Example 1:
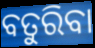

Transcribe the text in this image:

ବତୁରିବା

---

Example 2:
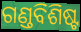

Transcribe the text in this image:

ଗଣ୍ଡବିଶିଷ୍ଟ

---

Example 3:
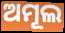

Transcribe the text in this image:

ଅମୂଲ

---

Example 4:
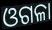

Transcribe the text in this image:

ଓଗଳା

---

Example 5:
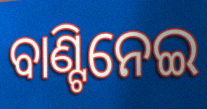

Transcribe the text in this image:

ବାଣ୍ଟିନେଇ